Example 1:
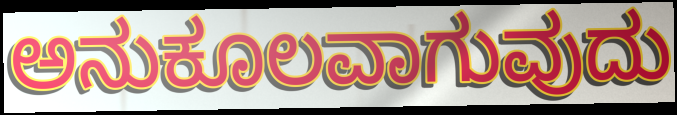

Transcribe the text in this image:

ಅನುಕೂಲವಾಗುವುದು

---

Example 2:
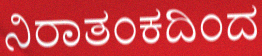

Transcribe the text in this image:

ನಿರಾತಂಕದಿಂದ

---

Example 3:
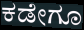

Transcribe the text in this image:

ಕಡೇಗೂ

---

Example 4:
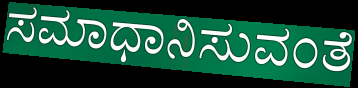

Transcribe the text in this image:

ಸಮಾಧಾನಿಸುವಂತೆ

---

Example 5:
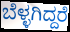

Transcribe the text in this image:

ಬೆಳ್ಳಗಿದ್ದರೆ